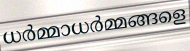
ധർമ്മാധർമ്മങ്ങളെ